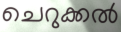
ചെറുക്കൽ